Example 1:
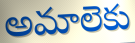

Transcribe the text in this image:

అమాలెకు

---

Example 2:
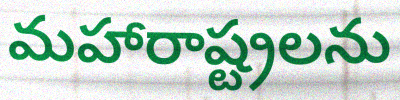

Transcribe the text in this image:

మహారాష్ట్రలను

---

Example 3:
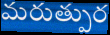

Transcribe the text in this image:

మరుత్పుర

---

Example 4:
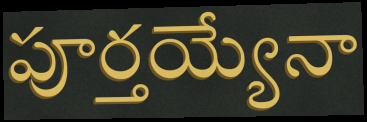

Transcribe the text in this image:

పూర్తయ్యేనా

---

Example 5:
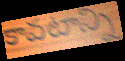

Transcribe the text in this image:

కావటాన్ని